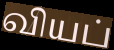
வியப்